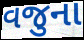
વજુના